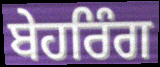
ਬੇਹਰਿੰਗ